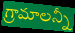
గ్రామాలన్నీ